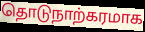
தொடுநாற்கரமாக